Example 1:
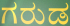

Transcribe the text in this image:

ಗರುಡ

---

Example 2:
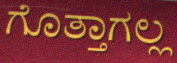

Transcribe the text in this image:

ಗೊತ್ತಾಗಲ್ಲ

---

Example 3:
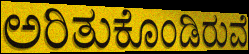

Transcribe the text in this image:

ಅರಿತುಕೊಂಡಿರುವೆ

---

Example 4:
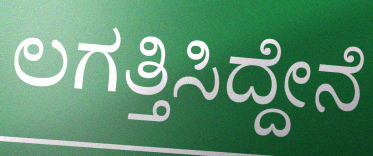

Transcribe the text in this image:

ಲಗತ್ತಿಸಿದ್ದೇನೆ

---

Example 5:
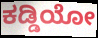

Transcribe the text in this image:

ಕಡ್ಡಿಯೋ